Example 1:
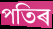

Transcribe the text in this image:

পতিৰ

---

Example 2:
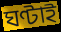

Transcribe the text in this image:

ঘণ্টাই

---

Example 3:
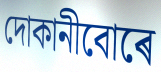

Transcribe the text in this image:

দোকানীবোৰে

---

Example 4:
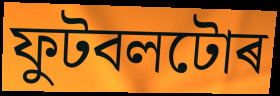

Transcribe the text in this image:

ফুটবলটোৰ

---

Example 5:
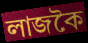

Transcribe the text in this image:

লাজকৈ